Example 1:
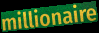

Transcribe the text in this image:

millionaire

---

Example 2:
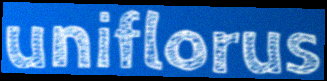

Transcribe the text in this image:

uniflorus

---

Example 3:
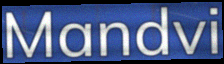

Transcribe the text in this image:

Mandvi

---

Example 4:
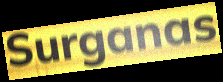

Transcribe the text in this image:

Surganas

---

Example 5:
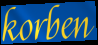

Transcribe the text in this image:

korben